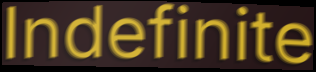
Indefinite